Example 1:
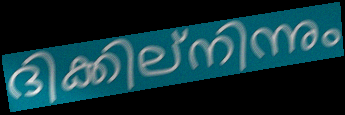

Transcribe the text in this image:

ദിക്കില്നിന്നും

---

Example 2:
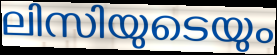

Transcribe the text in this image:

ലിസിയുടെയും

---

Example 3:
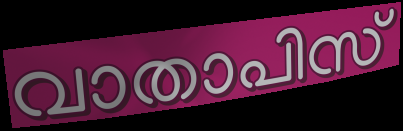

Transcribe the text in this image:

വാതാപിസ്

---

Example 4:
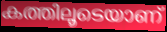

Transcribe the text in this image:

കത്തിലൂടെയാണ്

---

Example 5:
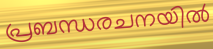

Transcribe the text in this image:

പ്രബന്ധരചനയിൽ